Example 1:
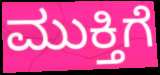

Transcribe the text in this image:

ಮುಕ್ತಿಗೆ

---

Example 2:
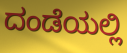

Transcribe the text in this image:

ದಂಡೆಯಲ್ಲಿ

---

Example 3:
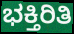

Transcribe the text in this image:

ಭಕ್ತಿರಿತಿ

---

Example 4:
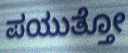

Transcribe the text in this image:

ಪಯುತ್ತೋ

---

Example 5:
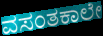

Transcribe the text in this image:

ವಸಂತಕಾಲೇ